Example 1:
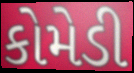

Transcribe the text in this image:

કોમેડી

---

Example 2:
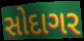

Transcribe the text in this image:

સોદાગર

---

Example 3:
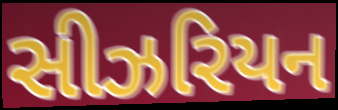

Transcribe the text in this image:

સીઝરિયન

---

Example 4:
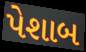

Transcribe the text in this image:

પેશાબ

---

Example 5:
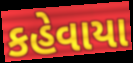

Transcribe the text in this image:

કહેવાયા